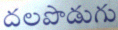
దలపొడుగు